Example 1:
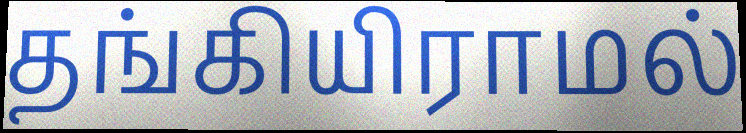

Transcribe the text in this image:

தங்கியிராமல்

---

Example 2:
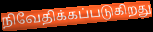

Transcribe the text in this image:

நிவேதிக்கப்படுகிறது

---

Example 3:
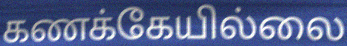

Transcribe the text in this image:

கணக்கேயில்லை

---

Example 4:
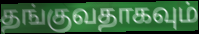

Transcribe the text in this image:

தங்குவதாகவும்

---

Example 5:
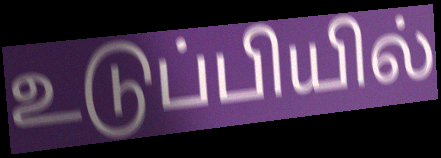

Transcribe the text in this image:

உடுப்பியில்